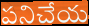
పనిచేయ